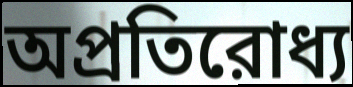
অপ্রতিরোধ্য